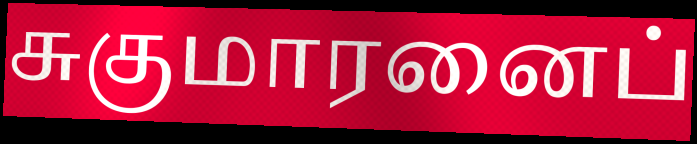
சுகுமாரனைப்